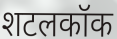
शटलकॉक